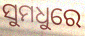
ସୁମଧୁରେ